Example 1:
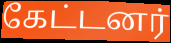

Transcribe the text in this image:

கேட்டனர்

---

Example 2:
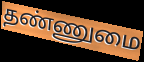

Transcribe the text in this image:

தண்ணுமை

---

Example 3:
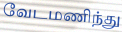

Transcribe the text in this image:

வேடமணிந்து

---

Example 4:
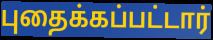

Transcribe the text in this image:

புதைக்கப்பட்டார்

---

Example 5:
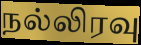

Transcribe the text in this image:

நல்லிரவு